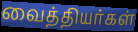
வைத்தியர்கள்